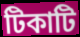
টিকাটি